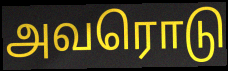
அவரொடு